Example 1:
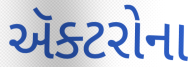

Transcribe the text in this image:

ઍક્ટરોના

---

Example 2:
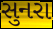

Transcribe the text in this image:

સુનરા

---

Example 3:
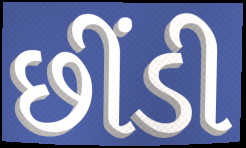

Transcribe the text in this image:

છીંડી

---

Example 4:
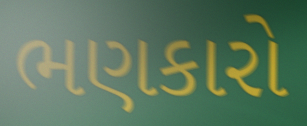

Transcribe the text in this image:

ભણકારો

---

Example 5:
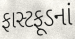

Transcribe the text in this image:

ફાસ્ટફૂડનાં